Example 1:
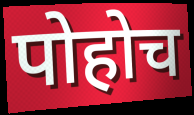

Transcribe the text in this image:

पोहोच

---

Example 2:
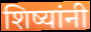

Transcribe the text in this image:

शिष्यांनी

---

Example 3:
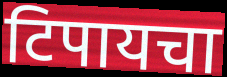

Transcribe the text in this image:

टिपायचा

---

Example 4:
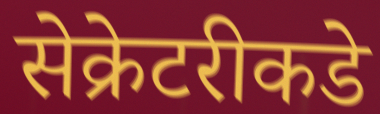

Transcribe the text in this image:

सेक्रेटरीकडे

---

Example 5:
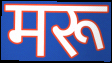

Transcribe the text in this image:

मरू